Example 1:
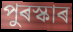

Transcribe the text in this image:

পুৰস্কাৰ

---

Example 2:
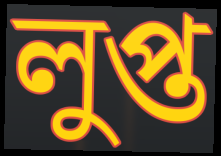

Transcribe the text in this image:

লুপ্ত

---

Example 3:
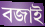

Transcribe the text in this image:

বজাই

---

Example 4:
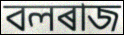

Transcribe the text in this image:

বলৰাজ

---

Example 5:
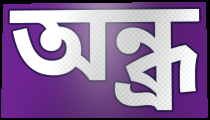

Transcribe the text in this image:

অন্ধ্ৰ